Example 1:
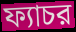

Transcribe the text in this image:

ফ্যাচর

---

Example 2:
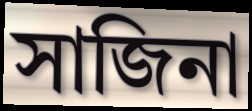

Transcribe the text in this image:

সাজিনা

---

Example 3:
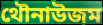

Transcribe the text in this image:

থৌনাউজম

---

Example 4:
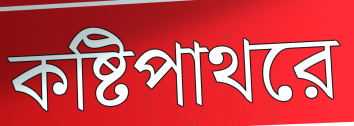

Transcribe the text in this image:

কষ্টিপাথরে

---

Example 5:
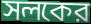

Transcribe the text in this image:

সলকের